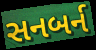
સનબર્ન